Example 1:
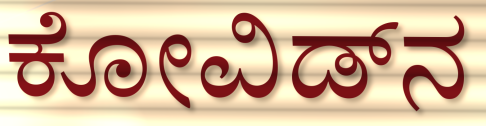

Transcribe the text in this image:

ಕೋವಿಡ್‌ನ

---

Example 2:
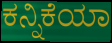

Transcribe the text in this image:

ಕನ್ನಿಕೆಯಾ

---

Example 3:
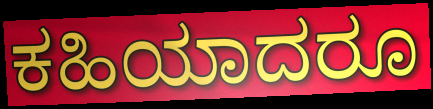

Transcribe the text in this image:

ಕಹಿಯಾದರೂ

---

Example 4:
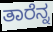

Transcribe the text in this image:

ತಾರೆನ್ನ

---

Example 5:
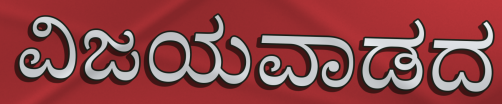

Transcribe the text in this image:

ವಿಜಯವಾಡದ